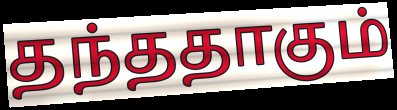
தந்ததாகும்